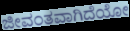
ಜೀವಂತವಾಗಿದೆಯೋ